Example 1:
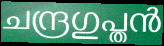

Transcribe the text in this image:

ചന്ദ്രഗുപ്തൻ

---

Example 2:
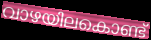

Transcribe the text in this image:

വാഴയിലകൊണ്ട്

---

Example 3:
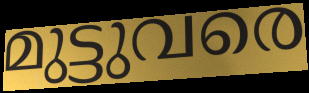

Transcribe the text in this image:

മുട്ടുവരെ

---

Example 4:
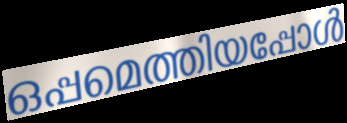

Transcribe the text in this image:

ഒപ്പമെത്തിയപ്പോൾ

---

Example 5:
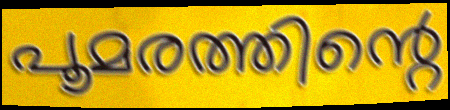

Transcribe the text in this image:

പൂമരത്തിന്റെ